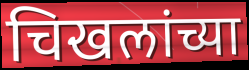
चिखलांच्या